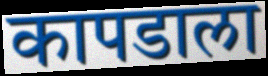
कापडाला